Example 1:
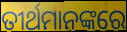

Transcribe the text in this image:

ତୀର୍ଥମାନଙ୍କରେ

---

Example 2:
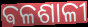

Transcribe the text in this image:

ଵଳଶାଳୀ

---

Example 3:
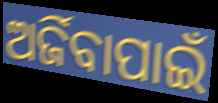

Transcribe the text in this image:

ଅର୍ଜିବାପାଇଁ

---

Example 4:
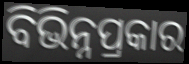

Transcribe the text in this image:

ବିଭିନ୍ନପ୍ରକାର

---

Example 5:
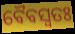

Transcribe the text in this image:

ବୈବସ୍ଵତଃ